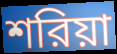
শরিয়া